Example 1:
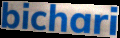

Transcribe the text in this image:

bichari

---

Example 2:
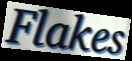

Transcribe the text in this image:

Flakes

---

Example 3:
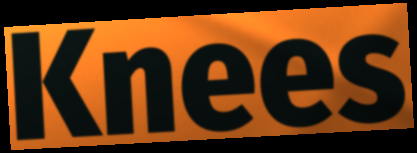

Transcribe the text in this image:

Knees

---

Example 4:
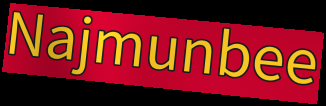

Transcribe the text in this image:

Najmunbee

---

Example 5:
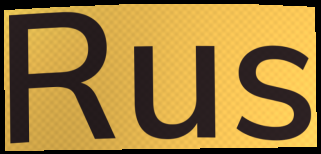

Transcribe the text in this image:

Rus